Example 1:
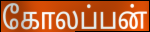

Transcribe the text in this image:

கோலப்பன்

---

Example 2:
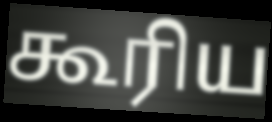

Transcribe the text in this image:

கூரிய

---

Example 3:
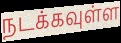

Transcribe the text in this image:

நடக்கவுள்ள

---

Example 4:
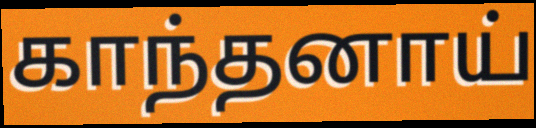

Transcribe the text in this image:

காந்தனாய்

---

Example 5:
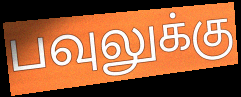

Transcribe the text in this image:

பவுலுக்கு